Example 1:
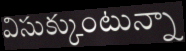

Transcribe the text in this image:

విసుక్కుంటున్నా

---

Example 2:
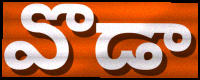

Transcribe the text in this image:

వొడా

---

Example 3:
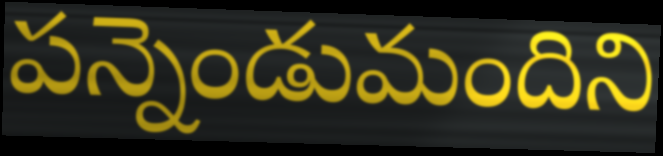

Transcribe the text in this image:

పన్నెండుమందిని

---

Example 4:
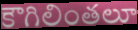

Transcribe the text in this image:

కౌగిలింతలూ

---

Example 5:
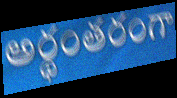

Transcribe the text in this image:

అర్థంతరంగా